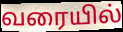
வரையில்